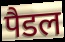
पैडल